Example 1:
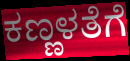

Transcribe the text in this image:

ಕಣ್ಣಳತೆಗೆ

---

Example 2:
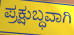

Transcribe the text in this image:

ಪ್ರಕ್ಷುಬ್ಧವಾಗಿ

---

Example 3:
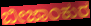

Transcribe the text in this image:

ಬೀಜಾಂಕುರ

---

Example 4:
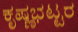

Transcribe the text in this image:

ಕೃಷ್ಣಭಟ್ಟರ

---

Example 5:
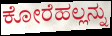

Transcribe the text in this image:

ಕೋರೆಹಲ್ಲನ್ನು